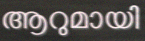
ആറുമായി